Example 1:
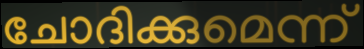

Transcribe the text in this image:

ചോദിക്കുമെന്ന്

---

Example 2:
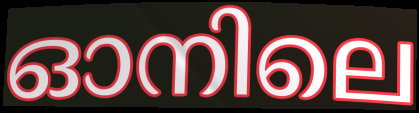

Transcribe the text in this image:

ഓനിലെ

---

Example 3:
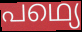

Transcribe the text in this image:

പഥ്യെ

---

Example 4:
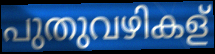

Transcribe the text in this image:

പുതുവഴികള്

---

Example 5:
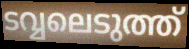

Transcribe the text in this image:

ടവ്വലെടുത്ത്